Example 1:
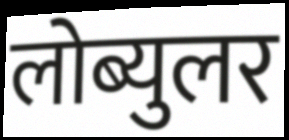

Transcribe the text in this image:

लोब्युलर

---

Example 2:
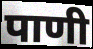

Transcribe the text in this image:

पाणी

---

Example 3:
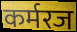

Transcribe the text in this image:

कर्मरज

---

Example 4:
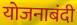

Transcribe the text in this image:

योजनाबंदी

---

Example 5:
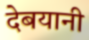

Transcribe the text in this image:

देबयानी